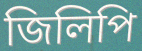
জিলিপি